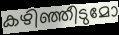
കഴിഞ്ഞീടുമോ